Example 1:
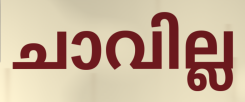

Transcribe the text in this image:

ചാവില്ല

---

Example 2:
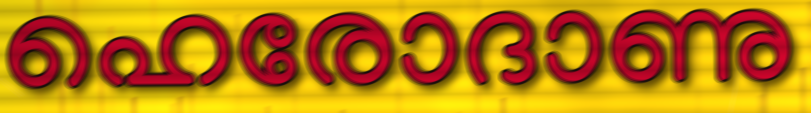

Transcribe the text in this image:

ഹെരോദാണു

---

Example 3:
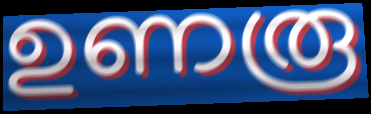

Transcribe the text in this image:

ഉണരൂ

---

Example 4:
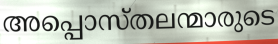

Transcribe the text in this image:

അപ്പൊസ്തലന്മാരുടെ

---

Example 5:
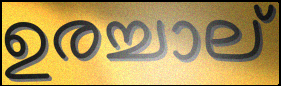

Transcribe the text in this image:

ഉരച്ചാല്